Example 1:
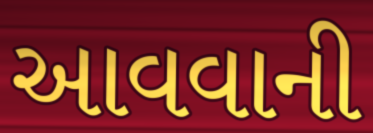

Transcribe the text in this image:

આવવાની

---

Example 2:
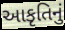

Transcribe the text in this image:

આકૃતિનું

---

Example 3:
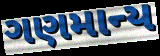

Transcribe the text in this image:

ગણમાન્ય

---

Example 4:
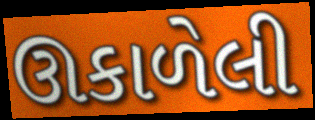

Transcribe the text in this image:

ઊકાળેલી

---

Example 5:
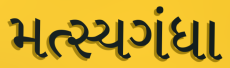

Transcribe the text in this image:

મત્સ્યગંધા